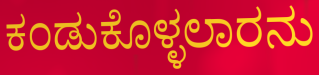
ಕಂಡುಕೊಳ್ಳಲಾರನು